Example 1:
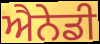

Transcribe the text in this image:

ਐਨੇਡੀ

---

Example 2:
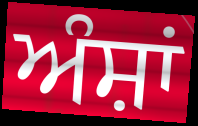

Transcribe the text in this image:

ਅੰਸ਼ਾਂ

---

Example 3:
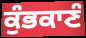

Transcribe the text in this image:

ਕੁੰਭਕਾਣੰ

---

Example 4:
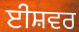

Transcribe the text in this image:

ਈਸ਼ਵਰ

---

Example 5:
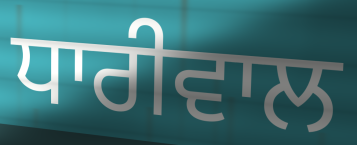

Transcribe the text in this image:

ਧਾਰੀਵਾਲ